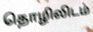
தொழிலிடம்